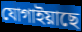
যোগাইয়াছে